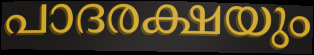
പാദരക്ഷയും